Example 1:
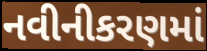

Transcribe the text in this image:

નવીનીકરણમાં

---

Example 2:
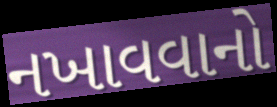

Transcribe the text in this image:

નખાવવાનો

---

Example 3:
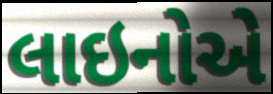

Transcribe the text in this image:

લાઇનોએ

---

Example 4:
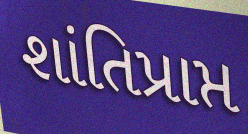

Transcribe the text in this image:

શાંતિપ્રાપ્ત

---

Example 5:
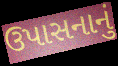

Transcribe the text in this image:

ઉપાસનાનું